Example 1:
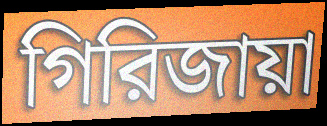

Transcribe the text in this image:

গিরিজায়া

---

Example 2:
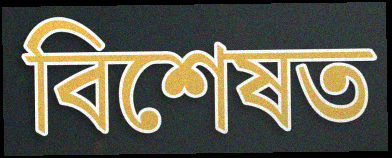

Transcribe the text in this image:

বিশেষত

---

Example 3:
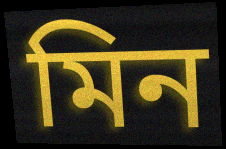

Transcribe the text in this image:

মিন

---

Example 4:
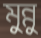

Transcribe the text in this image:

মুন্নু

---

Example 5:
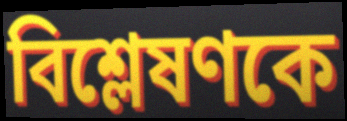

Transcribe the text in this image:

বিশ্লেষণকে